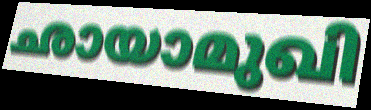
ഛായാമുഖി